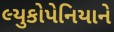
લ્યુકોપેનિયાને